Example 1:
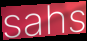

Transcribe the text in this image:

sahs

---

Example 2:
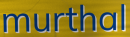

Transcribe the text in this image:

murthal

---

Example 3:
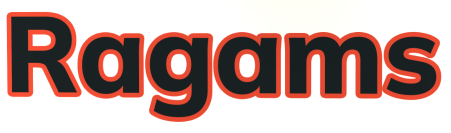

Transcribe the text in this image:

Ragams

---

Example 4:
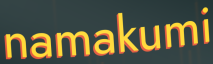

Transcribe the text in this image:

namakumi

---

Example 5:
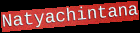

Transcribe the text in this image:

Natyachintana